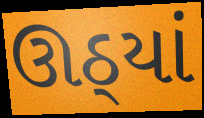
ઊઠ્યાં